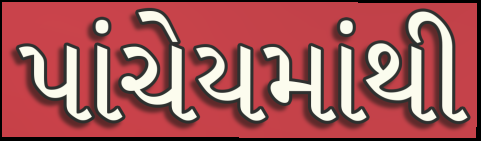
પાંચેયમાંથી